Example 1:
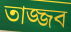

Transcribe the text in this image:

তাজ্জব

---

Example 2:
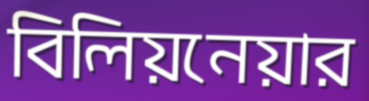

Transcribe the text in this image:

বিলিয়নেয়ার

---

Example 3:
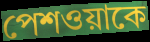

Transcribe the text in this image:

পেশওয়াকে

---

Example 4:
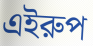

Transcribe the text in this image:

এইরুপ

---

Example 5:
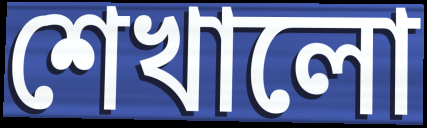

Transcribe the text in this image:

শেখালো